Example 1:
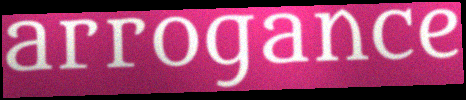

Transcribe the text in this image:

arrogance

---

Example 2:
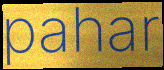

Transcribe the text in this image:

pahar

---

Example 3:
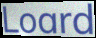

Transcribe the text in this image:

Loard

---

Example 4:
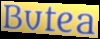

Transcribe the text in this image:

Butea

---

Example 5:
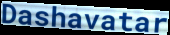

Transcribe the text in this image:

Dashavatar